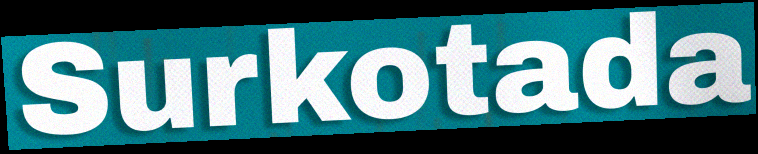
Surkotada